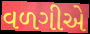
વળગીએ